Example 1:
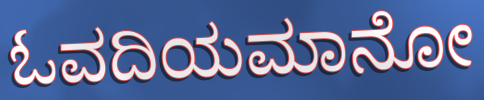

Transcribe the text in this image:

ಓವದಿಯಮಾನೋ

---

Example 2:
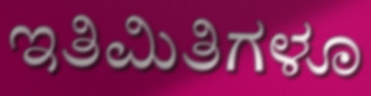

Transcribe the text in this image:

ಇತಿಮಿತಿಗಳೂ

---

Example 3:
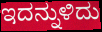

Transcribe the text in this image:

ಇದನ್ನುಳಿದು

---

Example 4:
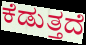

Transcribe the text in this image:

ಕೆಡುತ್ತದೆ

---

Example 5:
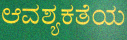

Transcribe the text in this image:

ಆವಶ್ಯಕತೆಯ